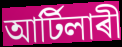
আৰ্টিলাৰী